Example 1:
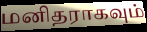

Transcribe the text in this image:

மனிதராகவும்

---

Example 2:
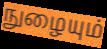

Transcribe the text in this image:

நுழையும்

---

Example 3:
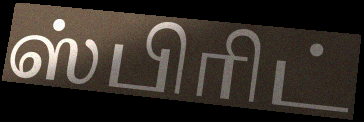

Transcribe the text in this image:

ஸ்பிரிட்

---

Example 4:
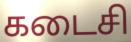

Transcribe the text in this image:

கடைசி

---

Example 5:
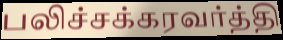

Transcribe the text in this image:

பலிச்சக்கரவர்த்தி